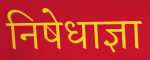
निषेधाज्ञा